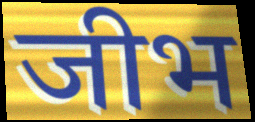
जीभ